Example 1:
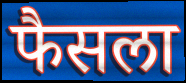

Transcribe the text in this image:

फैसला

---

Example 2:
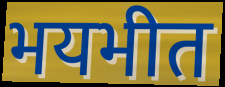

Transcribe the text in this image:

भयभीत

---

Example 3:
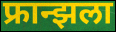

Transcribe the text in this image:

फ्रान्झला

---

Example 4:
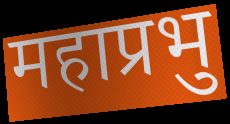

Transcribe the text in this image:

महाप्रभु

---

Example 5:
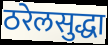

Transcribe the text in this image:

ठरेलसुद्धा